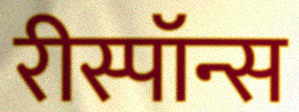
रीस्पॉन्स